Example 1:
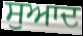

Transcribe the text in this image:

ਸੁਆਦ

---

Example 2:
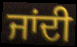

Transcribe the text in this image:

ਜਾਂਦੀ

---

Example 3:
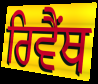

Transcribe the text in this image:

ਰਿਵੈਂਥ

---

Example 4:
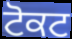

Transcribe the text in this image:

ਟੋਕਟ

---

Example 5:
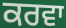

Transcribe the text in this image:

ਕਰਵਾ